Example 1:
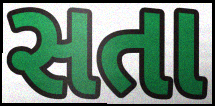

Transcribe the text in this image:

સતા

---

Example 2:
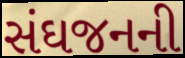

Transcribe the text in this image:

સંઘજનની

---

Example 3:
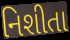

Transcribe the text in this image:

નિશીતા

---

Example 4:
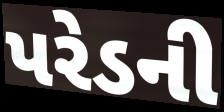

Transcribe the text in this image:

પરેડની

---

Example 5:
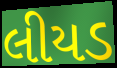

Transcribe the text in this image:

લીયડ